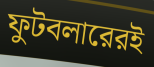
ফুটবলারেরই